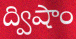
ద్విషాం